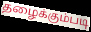
தழைக்கும்படி